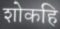
शोकहि